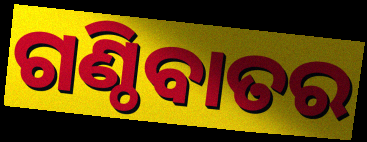
ଗଣ୍ଠିବାତର